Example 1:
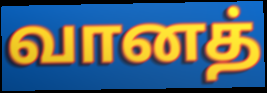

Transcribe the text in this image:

வானத்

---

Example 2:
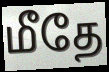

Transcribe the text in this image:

மீதே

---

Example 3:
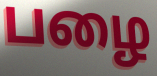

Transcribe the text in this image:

பழை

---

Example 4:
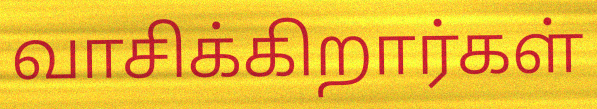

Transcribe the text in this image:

வாசிக்கிறார்கள்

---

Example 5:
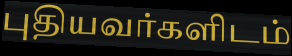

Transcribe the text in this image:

புதியவர்களிடம்